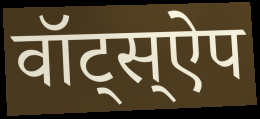
वॉट्स्ऐप